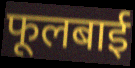
फूलबाई